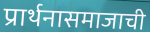
प्रार्थनासमाजाची